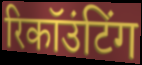
रिकॉउंटिंग